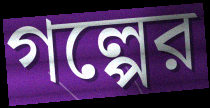
গল্পের